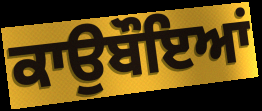
ਕਾਉਬੌਇਆਂ